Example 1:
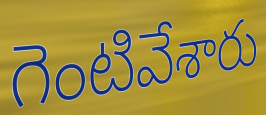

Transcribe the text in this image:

గెంటివేశారు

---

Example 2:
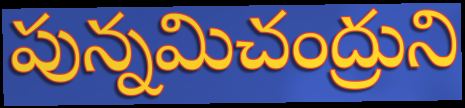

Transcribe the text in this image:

పున్నమిచంద్రుని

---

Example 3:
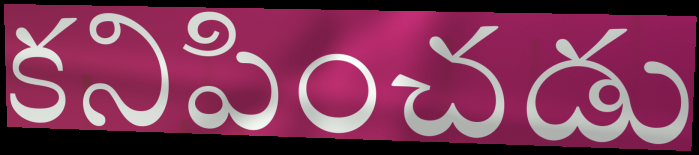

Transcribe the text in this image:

కనిపించడు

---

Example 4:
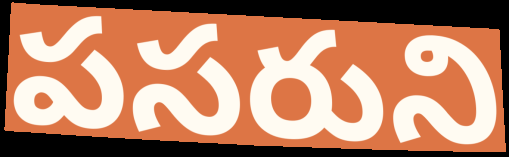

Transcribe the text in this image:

పసరుని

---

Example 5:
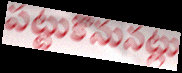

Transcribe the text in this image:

పట్టుకొనునట్లు